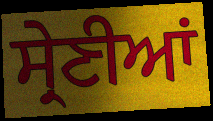
ਸ੍ਰੇਣੀਆਂ